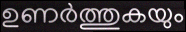
ഉണർത്തുകയും